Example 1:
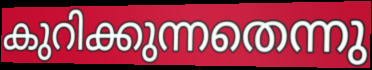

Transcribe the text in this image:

കുറിക്കുന്നതെന്നു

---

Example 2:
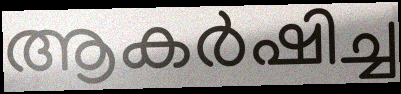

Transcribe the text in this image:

ആകർഷിച്ച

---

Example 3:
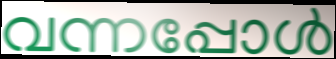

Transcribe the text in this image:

വന്നപ്പോൾ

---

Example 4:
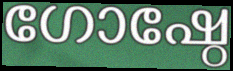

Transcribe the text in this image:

ഗോഷ്ഠേ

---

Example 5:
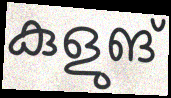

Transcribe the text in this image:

കുളുങ്